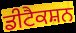
ਡੀਟੈਕਸ਼ਨ